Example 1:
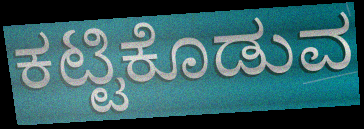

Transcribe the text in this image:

ಕಟ್ಟಿಕೊಡುವ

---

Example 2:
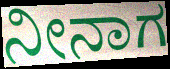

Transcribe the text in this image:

ನೀನಾಗ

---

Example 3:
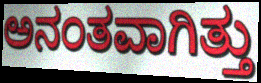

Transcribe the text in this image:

ಅನಂತವಾಗಿತ್ತು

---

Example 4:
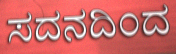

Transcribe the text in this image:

ಸದನದಿಂದ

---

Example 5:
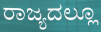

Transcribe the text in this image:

ರಾಜ್ಯದಲ್ಲೂ